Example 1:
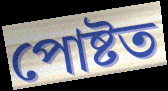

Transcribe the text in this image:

পোষ্টত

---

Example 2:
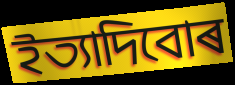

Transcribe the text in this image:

ইত্যাদিবোৰ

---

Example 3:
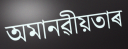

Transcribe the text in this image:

অমানৱীয়তাৰ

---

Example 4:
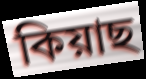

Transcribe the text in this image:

কিয়াছ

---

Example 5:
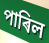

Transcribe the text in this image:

পাৰিল